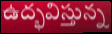
ఉద్భవిస్తున్న